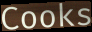
Cooks